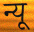
न्यू